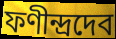
ফণীন্দ্রদেব